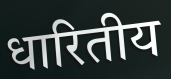
धारितीय